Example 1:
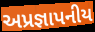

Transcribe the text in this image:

અપ્રજ્ઞાપનીય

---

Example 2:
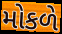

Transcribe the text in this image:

મોકળે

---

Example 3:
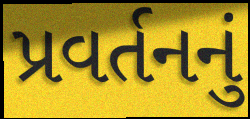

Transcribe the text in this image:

પ્રવર્તનનું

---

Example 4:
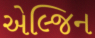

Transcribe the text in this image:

એલ્જિન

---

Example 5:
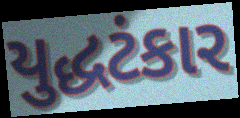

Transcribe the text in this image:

યુદ્ધટંકાર